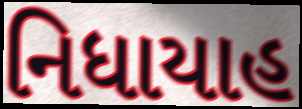
નિધાયાહ